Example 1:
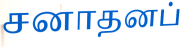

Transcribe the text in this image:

சனாதனப்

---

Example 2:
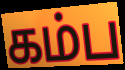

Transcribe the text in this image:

கம்ப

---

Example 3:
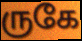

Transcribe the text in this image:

ருகே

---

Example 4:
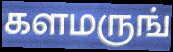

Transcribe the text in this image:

களமருங்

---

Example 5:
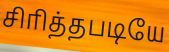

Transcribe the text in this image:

சிரித்தபடியே